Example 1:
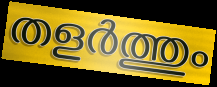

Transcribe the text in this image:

തളർത്തും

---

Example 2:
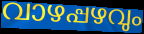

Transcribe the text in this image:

വാഴപ്പഴവും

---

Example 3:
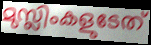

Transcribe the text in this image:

മുസ്ലിംകളുടേത്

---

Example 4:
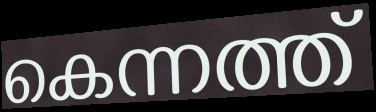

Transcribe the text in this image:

കെന്നത്ത്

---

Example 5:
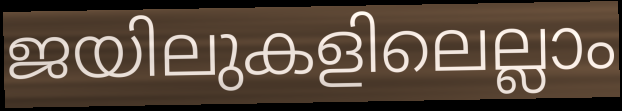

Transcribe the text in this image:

ജയിലുകളിലെല്ലാം